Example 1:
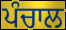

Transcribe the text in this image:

ਪੰਚਾਲ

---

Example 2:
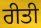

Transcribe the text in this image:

ਰੀਤੀ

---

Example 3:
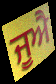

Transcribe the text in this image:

ਜੂਐ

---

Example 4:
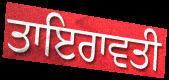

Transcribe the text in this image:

ਤਾਇਰਾਵਤੀ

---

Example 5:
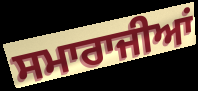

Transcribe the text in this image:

ਸਮਾਰਾਜੀਆਂ